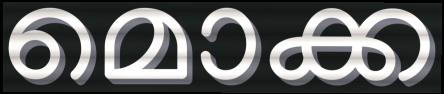
മൊക്ക